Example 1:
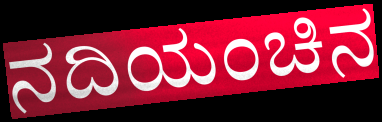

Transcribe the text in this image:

ನದಿಯಂಚಿನ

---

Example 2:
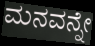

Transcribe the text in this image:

ಮನವನ್ನೇ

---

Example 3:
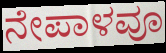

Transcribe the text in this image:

ನೇಪಾಳವೂ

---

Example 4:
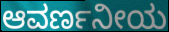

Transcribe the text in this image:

ಆವರ್ಣನೀಯ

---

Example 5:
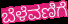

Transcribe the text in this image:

ಬೆಳೆವಣಿಗೆ